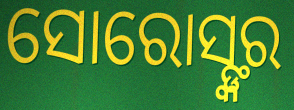
ସୋରୋସ୍ଙ୍କର